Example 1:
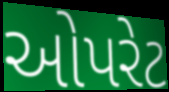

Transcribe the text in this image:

ઓપરેટ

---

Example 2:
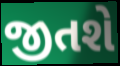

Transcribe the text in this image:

જીતશે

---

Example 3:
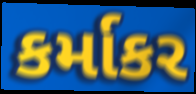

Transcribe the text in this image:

કર્માકર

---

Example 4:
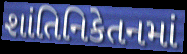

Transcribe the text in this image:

શાંતિનિકેતનમાં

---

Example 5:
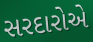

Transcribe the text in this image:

સરદારોએ